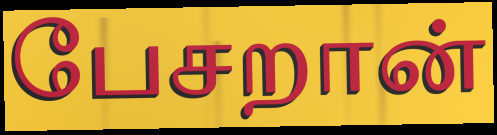
பேசறான்